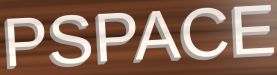
PSPACE